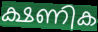
ക്ഷണിക